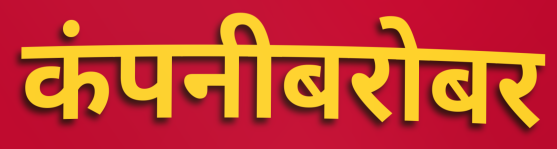
कंपनीबरोबर